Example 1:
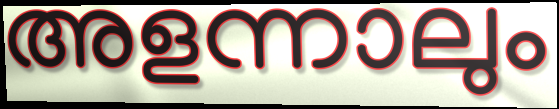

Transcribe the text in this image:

അളന്നാലും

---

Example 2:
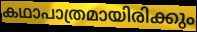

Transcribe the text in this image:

കഥാപാത്രമായിരിക്കും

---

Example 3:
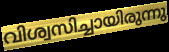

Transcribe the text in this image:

വിശ്വസിച്ചായിരുന്നു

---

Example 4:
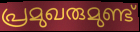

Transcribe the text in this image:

പ്രമുഖരുമുണ്ട്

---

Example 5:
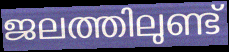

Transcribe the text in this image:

ജലത്തിലുണ്ട്